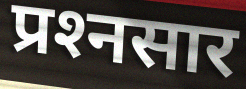
प्रश्‍नसार